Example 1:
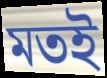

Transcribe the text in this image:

মতই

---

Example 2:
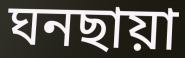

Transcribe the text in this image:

ঘনছায়া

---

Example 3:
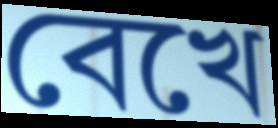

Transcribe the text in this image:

বেখে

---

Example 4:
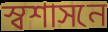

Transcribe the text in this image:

স্বশাসনে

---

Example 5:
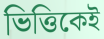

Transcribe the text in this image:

ভিত্তিকেই